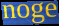
noge